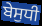
ਬੇਸੁਧੀ